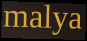
malya